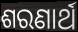
ଶରଣାର୍ଥ